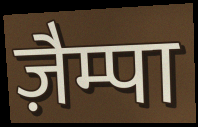
ज़ैम्पा